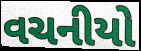
વચનીયો